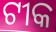
ଟୀକ